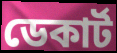
ডেকাৰ্ট